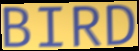
BIRD